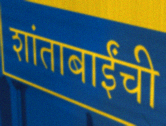
शांताबाईंची